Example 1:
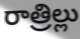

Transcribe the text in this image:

రాత్రిల్లు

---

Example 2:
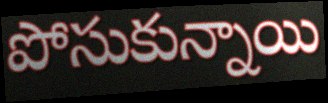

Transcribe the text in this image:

పోసుకున్నాయి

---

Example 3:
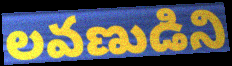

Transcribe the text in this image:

లవణుడిని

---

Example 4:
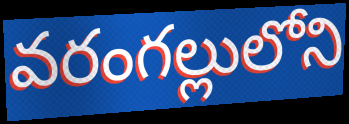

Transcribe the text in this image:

వరంగల్లులోని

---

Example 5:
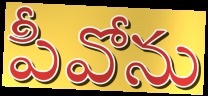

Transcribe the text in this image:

పీవోను